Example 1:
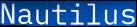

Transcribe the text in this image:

Nautilus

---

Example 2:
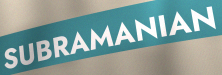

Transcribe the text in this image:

SUBRAMANIAN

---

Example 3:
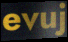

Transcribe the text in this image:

evuj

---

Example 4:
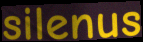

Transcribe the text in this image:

silenus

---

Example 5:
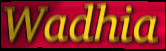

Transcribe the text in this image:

Wadhia